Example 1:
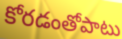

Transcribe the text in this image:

కోరడంతోపాటు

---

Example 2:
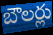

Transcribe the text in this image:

బౌలర్లు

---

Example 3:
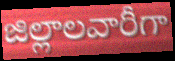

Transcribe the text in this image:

జిల్లాలవారీగా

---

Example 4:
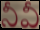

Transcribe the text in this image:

నీవీ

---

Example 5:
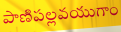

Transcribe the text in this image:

పాణిపల్లవయుగాం